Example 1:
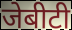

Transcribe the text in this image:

जेबीटी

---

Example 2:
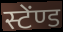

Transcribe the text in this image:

स्टेंण्ड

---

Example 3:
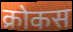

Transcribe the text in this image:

क्रोकस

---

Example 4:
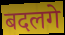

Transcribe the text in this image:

बदलगे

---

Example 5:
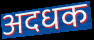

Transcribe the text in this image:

अदधक